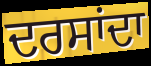
ਦਰਸਾਂਦਾ